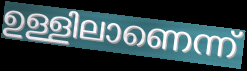
ഉള്ളിലാണെന്ന്